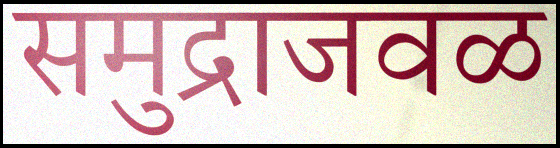
समुद्राजवळ